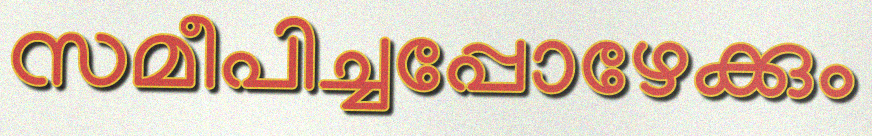
സമീപിച്ചപ്പോഴേക്കും